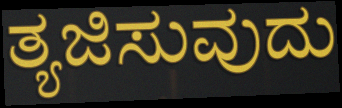
ತ್ಯಜಿಸುವುದು